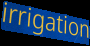
irrigation